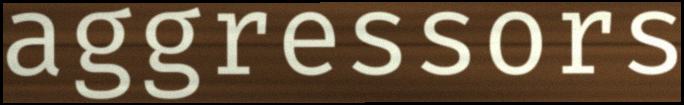
aggressors